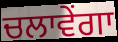
ਚਲਾਵੇਂਗਾ